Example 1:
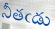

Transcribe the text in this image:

నీతఁడు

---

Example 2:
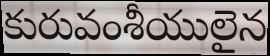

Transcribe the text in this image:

కురువంశీయులైన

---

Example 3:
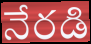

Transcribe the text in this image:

నేరడి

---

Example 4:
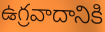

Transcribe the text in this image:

ఉగ్రవాదానికి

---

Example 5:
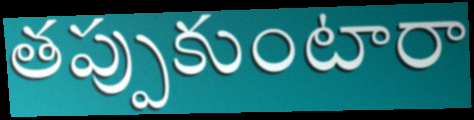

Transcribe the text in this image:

తప్పుకుంటారా